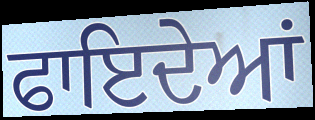
ਫਾਇਦੇਆਂ